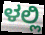
ಳಲ್ಲಿ